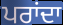
ਪਰਾਂਦਾ